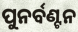
ପୁନର୍ବଣ୍ଟନ